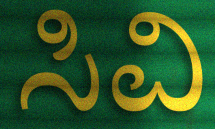
ಸಿವಿ